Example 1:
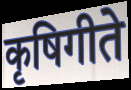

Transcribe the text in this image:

कृषिगीते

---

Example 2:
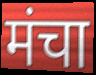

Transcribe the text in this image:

मंचा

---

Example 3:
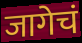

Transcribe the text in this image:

जागेचं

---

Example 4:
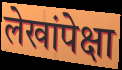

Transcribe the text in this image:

लेखांपेक्षा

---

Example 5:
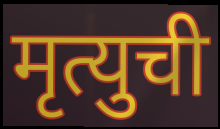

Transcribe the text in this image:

मृत्युची